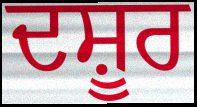
ਦਸ਼ੂਰ